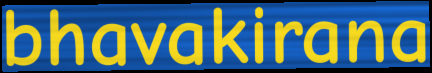
bhavakirana